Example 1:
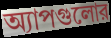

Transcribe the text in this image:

অ্যাপগুলোর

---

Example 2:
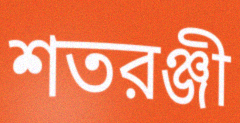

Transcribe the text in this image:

শতরঞ্জী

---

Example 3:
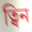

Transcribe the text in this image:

ত্বিন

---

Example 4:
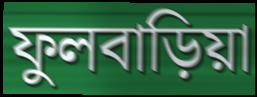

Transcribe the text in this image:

ফুলবাড়িয়া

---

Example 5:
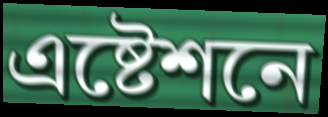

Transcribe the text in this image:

এষ্টেশনে